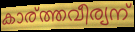
കാര്ത്തവീര്യന്